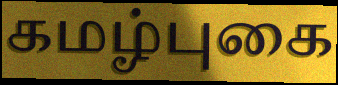
கமழ்புகை